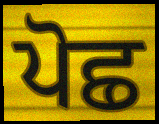
ਪੋਛ